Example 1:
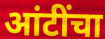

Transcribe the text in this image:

आंटींचा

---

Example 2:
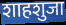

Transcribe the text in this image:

शाहशुजा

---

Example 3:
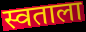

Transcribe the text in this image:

स्वताला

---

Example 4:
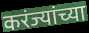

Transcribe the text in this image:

करंज्यांच्या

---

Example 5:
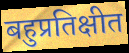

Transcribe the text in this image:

बहुप्रतिक्षीत